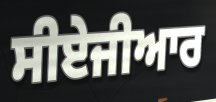
ਸੀਏਜੀਆਰ